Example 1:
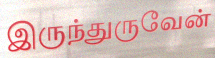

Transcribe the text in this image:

இருந்துருவேன்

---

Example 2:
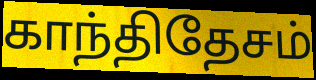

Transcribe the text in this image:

காந்திதேசம்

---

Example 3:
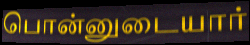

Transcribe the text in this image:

பொன்னுடையார்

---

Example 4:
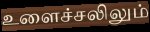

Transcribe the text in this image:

உளைச்சலிலும்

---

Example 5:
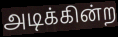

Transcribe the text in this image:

அடிக்கின்ற